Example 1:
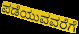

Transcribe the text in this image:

ಪಡೆಯುವವರೆಗೆ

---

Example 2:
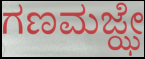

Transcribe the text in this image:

ಗಣಮಜ್ಝೇ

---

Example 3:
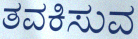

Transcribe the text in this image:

ತವಕಿಸುವ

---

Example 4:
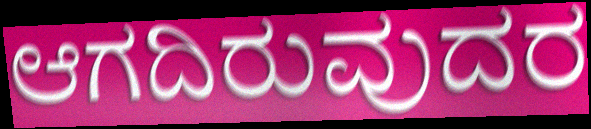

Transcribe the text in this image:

ಆಗದಿರುವುದರ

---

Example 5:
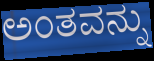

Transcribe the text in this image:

ಅಂತವನ್ನು